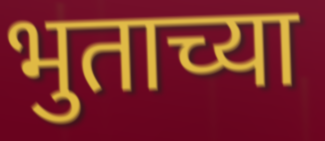
भुताच्या